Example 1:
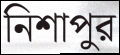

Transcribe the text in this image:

নিশাপুর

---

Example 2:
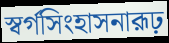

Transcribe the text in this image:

স্বর্গসিংহাসনারূঢ়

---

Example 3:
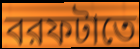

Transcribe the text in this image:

বরফটাতে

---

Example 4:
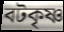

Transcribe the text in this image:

বটকৃষ্ণ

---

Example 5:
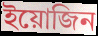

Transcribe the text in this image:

ইয়োজিন